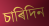
চাৰিদিন